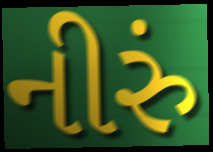
નીરું